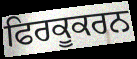
ਫਿਰਕੂਕਰਨ